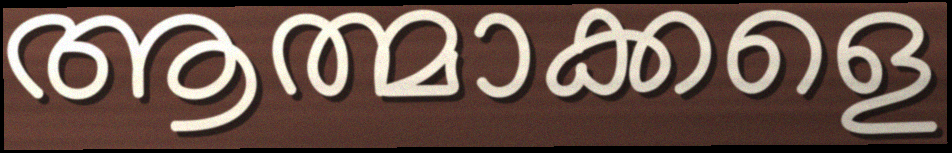
ആത്മാക്കളെ